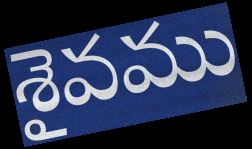
శైవము